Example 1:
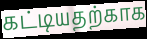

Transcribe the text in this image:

கட்டியதற்காக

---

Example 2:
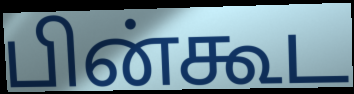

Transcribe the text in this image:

பின்கூட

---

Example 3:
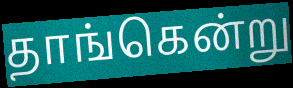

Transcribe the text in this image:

தாங்கென்று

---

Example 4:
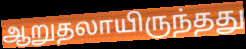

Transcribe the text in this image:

ஆறுதலாயிருந்தது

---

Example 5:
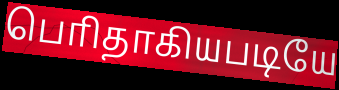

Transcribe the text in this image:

பெரிதாகியபடியே